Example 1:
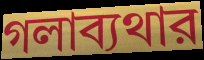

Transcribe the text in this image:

গলাব্যথার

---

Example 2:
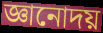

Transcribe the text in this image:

জ্ঞানোদয়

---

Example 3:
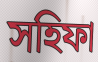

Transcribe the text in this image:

সহিফা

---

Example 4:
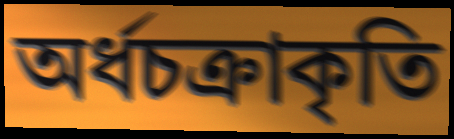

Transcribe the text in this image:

অর্ধচক্রাকৃতি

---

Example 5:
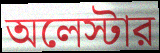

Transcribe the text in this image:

অলেস্টার